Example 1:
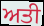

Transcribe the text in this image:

ਅਤੀ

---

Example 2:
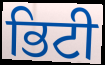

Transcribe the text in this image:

ਭਿਟੀ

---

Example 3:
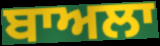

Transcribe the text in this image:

ਬਾਅਲਾ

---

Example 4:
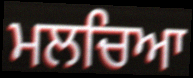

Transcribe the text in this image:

ਮਲਚਿਆ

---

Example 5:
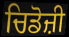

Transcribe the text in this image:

ਚਿਡੋਜ਼ੀ